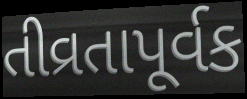
તીવ્રતાપૂર્વક